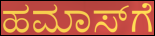
ಹಮಾಸ್‌ಗೆ